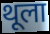
थूला